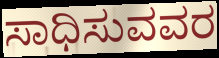
ಸಾಧಿಸುವವರ